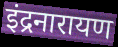
इंद्रनारायण